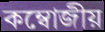
কম্বোজীয়